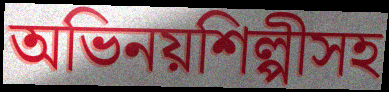
অভিনয়শিল্পীসহ